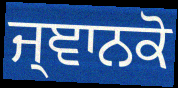
ਜ੍ਞਾਨਕੋ